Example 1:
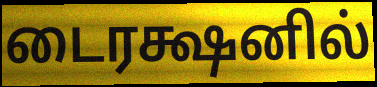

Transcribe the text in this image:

டைரக்ஷனில்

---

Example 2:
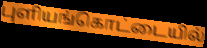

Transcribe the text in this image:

புளியங்கொட்டையில்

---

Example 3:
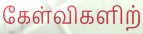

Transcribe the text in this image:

கேள்விகளிற்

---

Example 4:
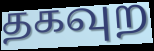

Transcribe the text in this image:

தகவுற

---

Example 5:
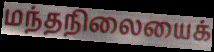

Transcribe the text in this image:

மந்தநிலையைக்